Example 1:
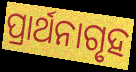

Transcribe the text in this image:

ପ୍ରାର୍ଥନାଗୃହ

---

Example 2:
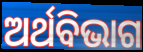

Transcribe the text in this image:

ଅର୍ଥବିଭାଗ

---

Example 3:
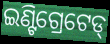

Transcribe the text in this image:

ଇଣ୍ଟିଗ୍ରେଟେଡ୍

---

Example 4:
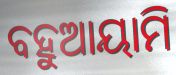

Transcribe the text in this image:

ବହୁଆୟାମି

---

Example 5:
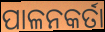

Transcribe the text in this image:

ପାଳନକର୍ତା